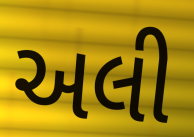
અલી